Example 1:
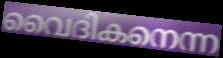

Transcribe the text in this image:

വൈദികനെന്ന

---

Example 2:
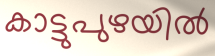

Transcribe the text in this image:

കാട്ടുപുഴയിൽ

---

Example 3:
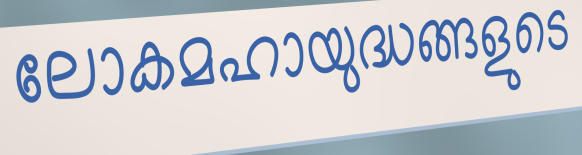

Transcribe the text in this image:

ലോകമഹായുദ്ധങ്ങളുടെ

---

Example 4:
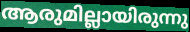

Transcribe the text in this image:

ആരുമില്ലായിരുന്നു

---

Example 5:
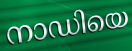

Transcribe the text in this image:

നാഡിയെ